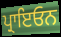
ਪ੍ਰਾਇਓਨ